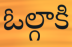
ఓల్గాకి